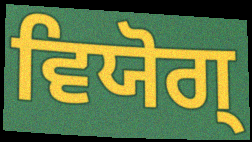
ਵਿਯੋਗ੍